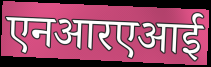
एनआरएआई